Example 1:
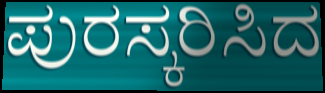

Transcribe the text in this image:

ಪುರಸ್ಕರಿಸಿದ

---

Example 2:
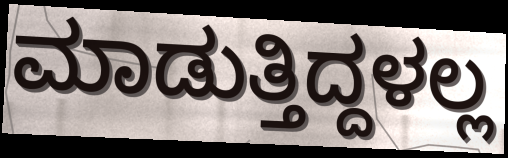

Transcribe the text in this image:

ಮಾಡುತ್ತಿದ್ದಳಲ್ಲ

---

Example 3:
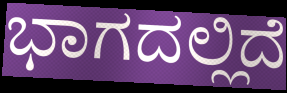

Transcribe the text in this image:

ಭಾಗದಲ್ಲಿದೆ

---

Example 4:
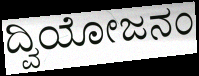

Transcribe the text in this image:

ದ್ವಿಯೋಜನಂ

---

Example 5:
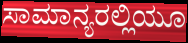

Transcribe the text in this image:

ಸಾಮಾನ್ಯರಲ್ಲಿಯೂ